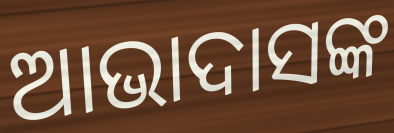
ଆଭାଦାସଙ୍କ